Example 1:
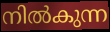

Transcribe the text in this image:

നിൽകുന്ന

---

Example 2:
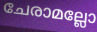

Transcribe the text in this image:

ചേരാമല്ലോ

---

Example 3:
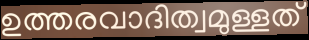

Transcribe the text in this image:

ഉത്തരവാദിത്വമുള്ളത്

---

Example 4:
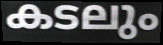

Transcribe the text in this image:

കടലും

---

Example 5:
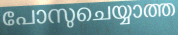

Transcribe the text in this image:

പോസുചെയ്യാത്ത